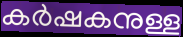
കർഷകനുള്ള